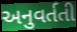
અનુવર્તતી